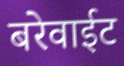
बरेवाईट